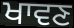
ਖਾਵਣ